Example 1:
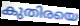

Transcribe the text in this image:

കുതിരയെ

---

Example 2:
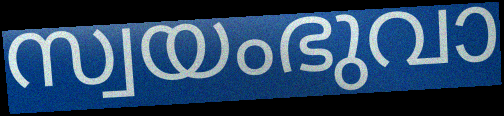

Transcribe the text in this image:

സ്വയംഭുവാ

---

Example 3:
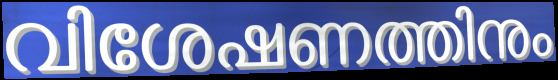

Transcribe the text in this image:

വിശേഷണത്തിനും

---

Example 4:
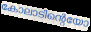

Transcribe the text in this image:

കോലാടിന്റെയോ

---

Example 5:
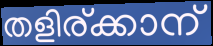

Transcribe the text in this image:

തളിര്ക്കാന്